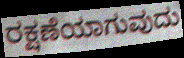
ರಕ್ಷಣೆಯಾಗುವುದು